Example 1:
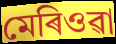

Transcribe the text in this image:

মেৰিওৱা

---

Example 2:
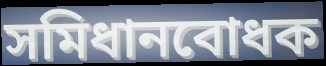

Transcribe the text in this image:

সমিধানবোধক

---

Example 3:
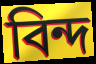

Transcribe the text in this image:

বিন্দ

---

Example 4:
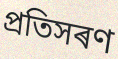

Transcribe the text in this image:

প্ৰতিসৰণ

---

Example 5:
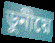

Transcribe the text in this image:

ডুনীয়ে